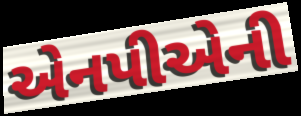
એનપીએની